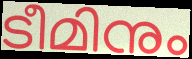
ടീമിനും